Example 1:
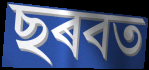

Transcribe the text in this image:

ছৰবত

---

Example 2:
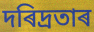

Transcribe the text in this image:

দৰিদ্ৰতাৰ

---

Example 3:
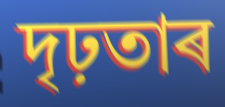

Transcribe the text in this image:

দৃঢ়তাৰ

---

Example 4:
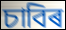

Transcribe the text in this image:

চাবিৰ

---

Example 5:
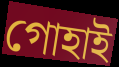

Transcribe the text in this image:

গোহাই